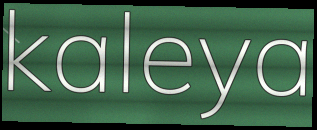
kaleya